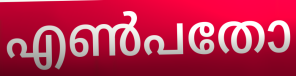
എൺപതോ